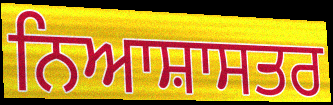
ਨਿਆਸ਼ਾਸਤਰ